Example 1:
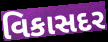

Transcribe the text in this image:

વિકાસદર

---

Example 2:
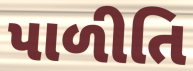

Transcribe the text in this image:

પાળીતિ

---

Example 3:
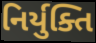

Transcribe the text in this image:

નિર્યુક્તિ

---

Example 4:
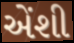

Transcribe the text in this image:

એંશી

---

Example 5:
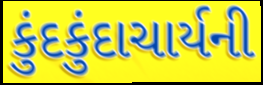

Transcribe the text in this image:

કુંદકુંદાચાર્યની